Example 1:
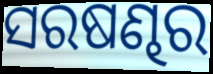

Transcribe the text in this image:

ସରଷଣ୍ଢର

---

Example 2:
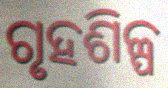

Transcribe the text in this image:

ଗୃହଶିଳ୍ପ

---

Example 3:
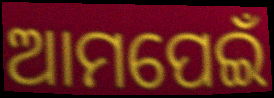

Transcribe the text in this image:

ଆମପେଇଁ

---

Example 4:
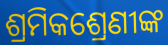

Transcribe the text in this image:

ଶ୍ରମିକଶ୍ରେଣୀଙ୍କ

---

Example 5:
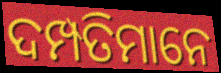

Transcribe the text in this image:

ଦମ୍ପତିମାନେ